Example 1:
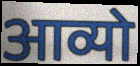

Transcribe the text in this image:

आव्यो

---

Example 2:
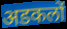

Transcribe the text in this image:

अडकलों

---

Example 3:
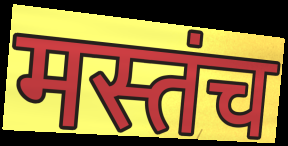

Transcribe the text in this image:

मस्तंच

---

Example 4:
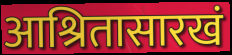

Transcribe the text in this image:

आश्रितासारखं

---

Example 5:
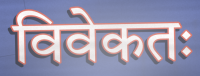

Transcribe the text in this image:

विवेकतः